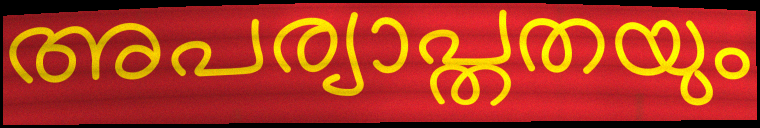
അപര്യാപ്തതയും